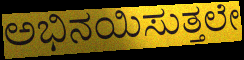
ಅಭಿನಯಿಸುತ್ತಲೇ